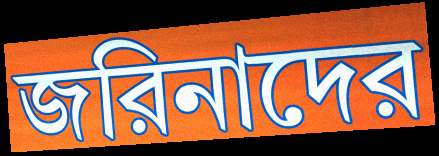
জরিনাদের